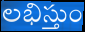
లభిస్తుం